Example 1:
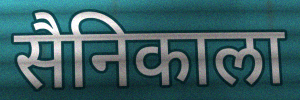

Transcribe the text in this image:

सैनिकाला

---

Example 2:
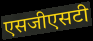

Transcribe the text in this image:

एसजीएसटी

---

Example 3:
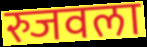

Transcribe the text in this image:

रुजवला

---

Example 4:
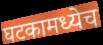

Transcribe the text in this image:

घटकामध्येच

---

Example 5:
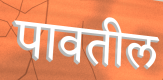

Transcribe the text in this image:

पावतील